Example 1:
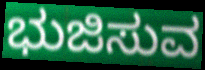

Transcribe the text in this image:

ಭುಜಿಸುವ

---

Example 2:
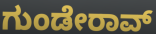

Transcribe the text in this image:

ಗುಂಡೇರಾವ್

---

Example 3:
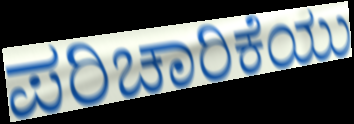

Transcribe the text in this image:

ಪರಿಚಾರಿಕೆಯು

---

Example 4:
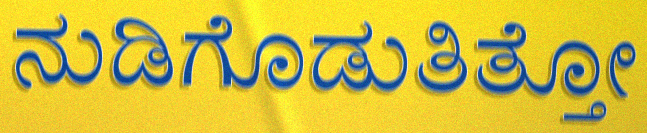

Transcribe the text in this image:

ನುಡಿಗೊಡುತಿತ್ತೋ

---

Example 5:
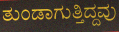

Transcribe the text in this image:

ತುಂಡಾಗುತ್ತಿದ್ದವು